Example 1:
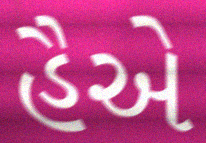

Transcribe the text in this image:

હૈએ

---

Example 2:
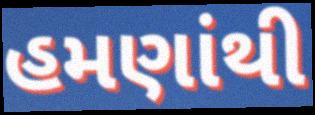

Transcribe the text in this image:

હમણાંથી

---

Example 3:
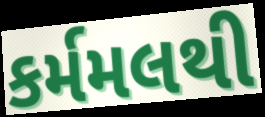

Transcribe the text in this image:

કર્મમલથી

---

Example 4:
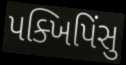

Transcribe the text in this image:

પક્ખિપિંસુ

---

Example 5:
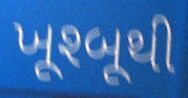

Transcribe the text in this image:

ખૂશ્બૂથી